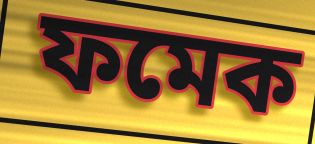
ফমেক